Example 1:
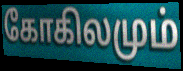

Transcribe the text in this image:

கோகிலமும்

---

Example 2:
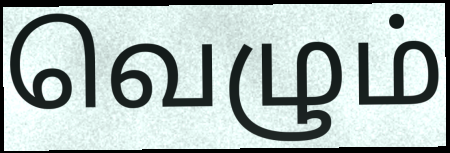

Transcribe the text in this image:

வெழும்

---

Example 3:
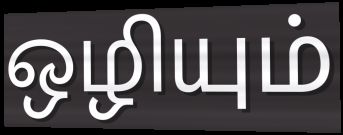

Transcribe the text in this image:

ஒழியும்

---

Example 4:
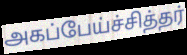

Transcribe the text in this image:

அகப்பேய்ச்சித்தர்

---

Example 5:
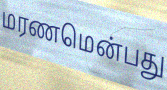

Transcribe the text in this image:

மரணமென்பது